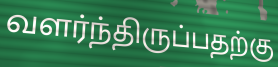
வளர்ந்திருப்பதற்கு